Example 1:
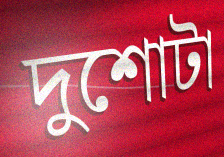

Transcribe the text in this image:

দুশোটা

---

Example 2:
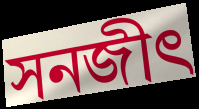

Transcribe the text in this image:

সনজীৎ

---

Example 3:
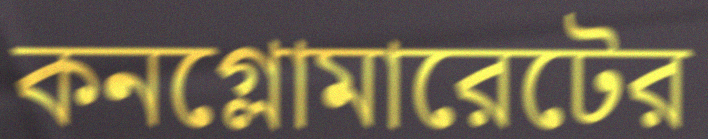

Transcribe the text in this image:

কনগ্লোমারেটের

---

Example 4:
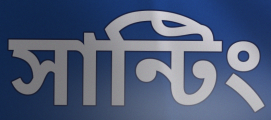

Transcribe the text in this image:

সান্টিং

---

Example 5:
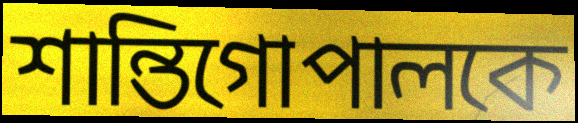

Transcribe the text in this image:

শান্তিগোপালকে